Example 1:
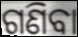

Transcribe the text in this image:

ଗଣିବା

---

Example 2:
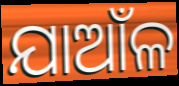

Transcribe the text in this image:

ଯାଆଁଳ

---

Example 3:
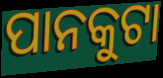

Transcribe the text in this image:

ପାନକୁଟା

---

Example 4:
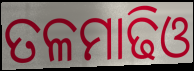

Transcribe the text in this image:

ତଳମାଢିଓ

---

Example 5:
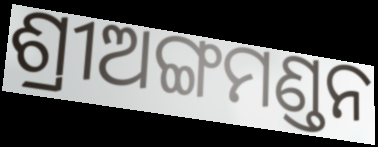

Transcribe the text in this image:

ଶ୍ରୀଅଙ୍ଗମଣ୍ଡନ